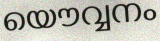
യൌവ്വനം